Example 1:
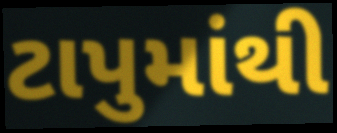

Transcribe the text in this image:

ટાપુમાંથી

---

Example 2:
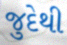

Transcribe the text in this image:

જુદેથી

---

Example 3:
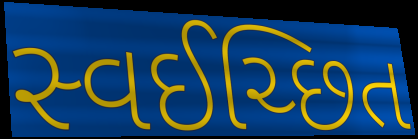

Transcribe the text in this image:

સ્વઈચ્છિત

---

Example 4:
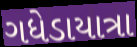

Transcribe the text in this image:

ગધેડાયાત્રા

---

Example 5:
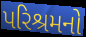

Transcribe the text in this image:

પરિશ્રમનો